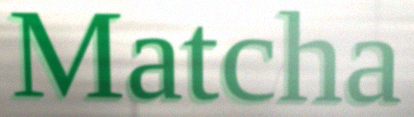
Matcha